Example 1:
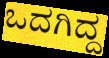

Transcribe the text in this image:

ಒದಗಿದ್ದ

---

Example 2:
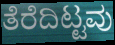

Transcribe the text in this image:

ತೆರೆದಿಟ್ಟವು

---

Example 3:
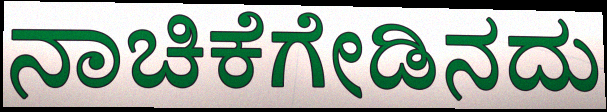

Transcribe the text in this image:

ನಾಚಿಕೆಗೇಡಿನದು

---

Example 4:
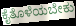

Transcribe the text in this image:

ಕೈತೊಳೆಯಬೇಕು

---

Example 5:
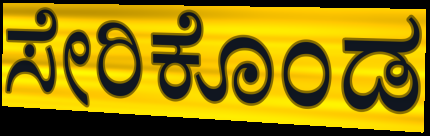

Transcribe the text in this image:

ಸೇರಿಕೊಂಡ